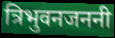
त्रिभुवनजननी